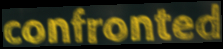
confronted